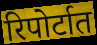
रिपोर्टात